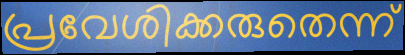
പ്രവേശിക്കരുതെന്ന്